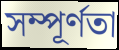
সম্পূর্ণতা